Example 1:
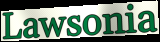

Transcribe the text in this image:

Lawsonia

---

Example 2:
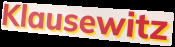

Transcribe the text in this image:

Klausewitz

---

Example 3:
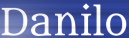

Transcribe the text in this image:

Danilo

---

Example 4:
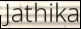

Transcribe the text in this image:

Jathika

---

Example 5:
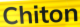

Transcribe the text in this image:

Chiton